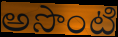
అసొంటి